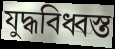
যুদ্ধবিধ্বস্ত